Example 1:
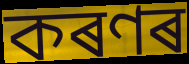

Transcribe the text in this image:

কৰণৰ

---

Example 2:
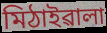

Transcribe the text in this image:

মিঠাইৱালা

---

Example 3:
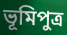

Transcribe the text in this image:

ভূমিপুত্ৰ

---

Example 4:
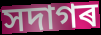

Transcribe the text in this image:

সদাগৰ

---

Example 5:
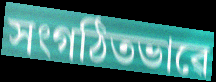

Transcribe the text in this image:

সংগঠিতভাৱে